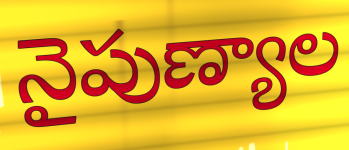
నైపుణ్యాల